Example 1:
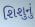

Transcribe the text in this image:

શિશુનું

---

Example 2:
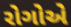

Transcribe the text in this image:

રોગોએ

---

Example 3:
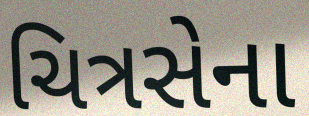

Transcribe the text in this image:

ચિત્રસેના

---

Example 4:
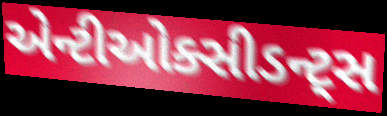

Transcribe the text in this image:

એન્ટીઓક્સીડન્ટ્સ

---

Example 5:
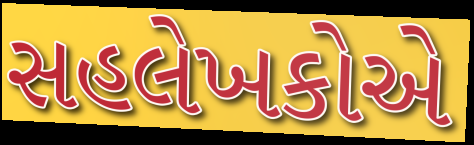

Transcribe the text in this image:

સહલેખકોએ